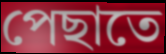
পেছাতে